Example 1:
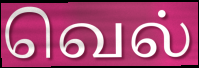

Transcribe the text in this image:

வெல்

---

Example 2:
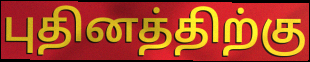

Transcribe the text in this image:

புதினத்திற்கு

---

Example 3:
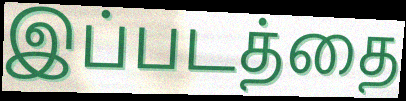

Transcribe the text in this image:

இப்படத்தை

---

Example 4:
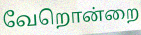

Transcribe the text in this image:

வேறொன்றை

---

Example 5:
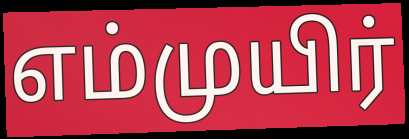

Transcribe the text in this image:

எம்முயிர்